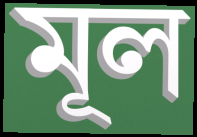
মূল